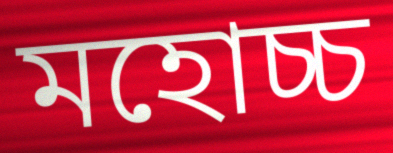
মহোচ্চ